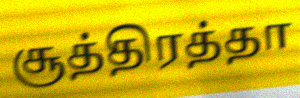
சூத்திரத்தா